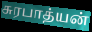
சுரபாத்யன்